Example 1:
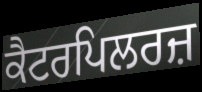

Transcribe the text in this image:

ਕੈਟਰਪਿਲਰਜ਼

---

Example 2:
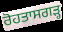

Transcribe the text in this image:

ਰੋਹਤਾਸਗੜ੍ਹ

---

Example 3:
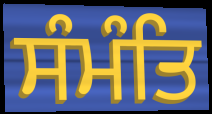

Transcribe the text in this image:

ਸੰਮੰਤਿ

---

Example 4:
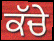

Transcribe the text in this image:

ਕੱਚੇ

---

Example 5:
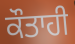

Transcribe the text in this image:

ਕੌਤਾਹੀ